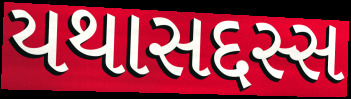
યથાસદ્દસ્સ